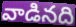
వాడినది